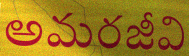
అమరజీవి